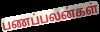
பணப்பலன்கள்